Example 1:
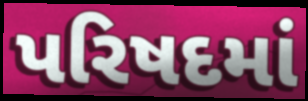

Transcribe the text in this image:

પરિષદમાં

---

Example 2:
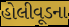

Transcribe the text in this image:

હોલીવૂડના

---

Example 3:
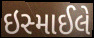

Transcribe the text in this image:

ઇસ્માઈલે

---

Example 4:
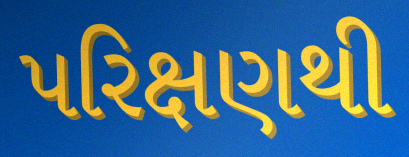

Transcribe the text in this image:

પરિક્ષણથી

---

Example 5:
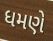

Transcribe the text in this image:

ધમણે